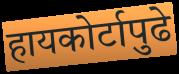
हायकोर्टापुढे